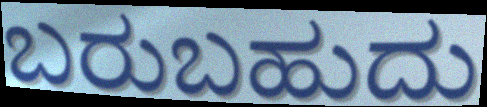
ಬರುಬಹುದು